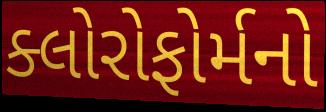
ક્લોરોફોર્મનો